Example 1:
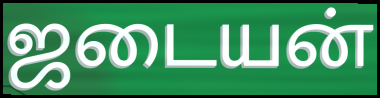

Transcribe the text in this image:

ஜடையன்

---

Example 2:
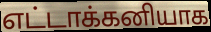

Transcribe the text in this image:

எட்டாக்கனியாக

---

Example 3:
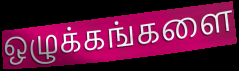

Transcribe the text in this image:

ஒழுக்கங்களை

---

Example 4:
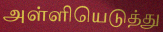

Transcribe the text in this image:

அள்ளியெடுத்து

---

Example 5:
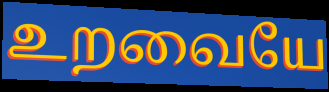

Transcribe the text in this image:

உறவையே